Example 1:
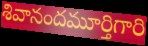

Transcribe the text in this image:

శివానందమూర్తిగారి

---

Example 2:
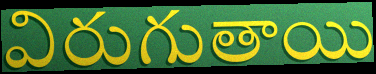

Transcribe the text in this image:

విరుగుతాయి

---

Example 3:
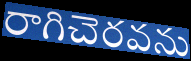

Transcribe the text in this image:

రాగిచెరవను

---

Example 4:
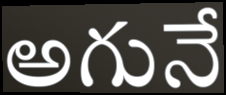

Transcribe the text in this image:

అగునే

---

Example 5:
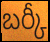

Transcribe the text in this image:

బర్కీ